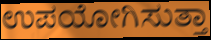
ಉಪಯೋಗಿಸುತ್ತಾ